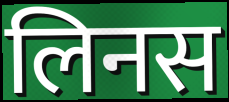
लिनस